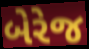
બેરેજ